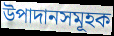
উপাদানসমূহক